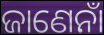
ଜାଣେନାଁ